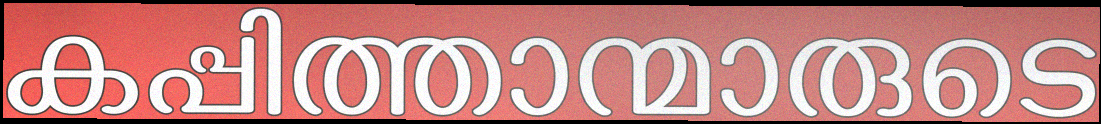
കപ്പിത്താന്മാരുടെ